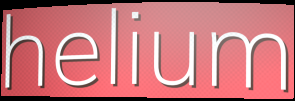
helium